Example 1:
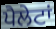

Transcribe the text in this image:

ਪੈਲੇਟਾਂ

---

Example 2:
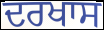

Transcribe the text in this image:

ਦਰਖਾਸ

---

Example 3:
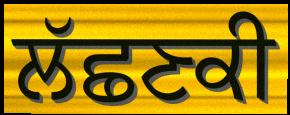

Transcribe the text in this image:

ਲੱਛਣਕੀ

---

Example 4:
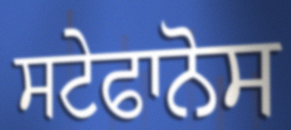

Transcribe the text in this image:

ਸਟੇਫਾਨੋਸ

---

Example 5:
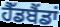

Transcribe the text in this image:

ਹੈੱਡਬੈਂਡਾਂ